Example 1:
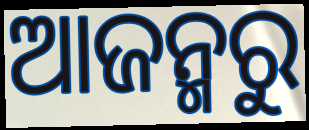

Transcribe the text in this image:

ଆଜନ୍ମରୁ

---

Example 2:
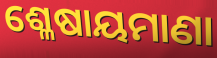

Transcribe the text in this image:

ଶ୍ଳେଷାୟମାଣା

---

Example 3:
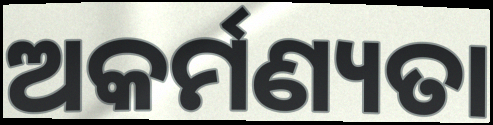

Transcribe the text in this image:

ଅକର୍ମଣ୍ୟତା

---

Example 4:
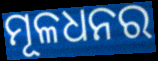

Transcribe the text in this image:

ମୂଳଧନର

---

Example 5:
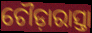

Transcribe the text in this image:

ଚୌଡ଼ାରାସ୍ତା